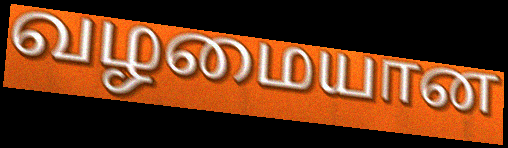
வழமையான